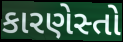
કારણેસ્તો